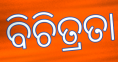
ବିଚିତ୍ରତା